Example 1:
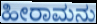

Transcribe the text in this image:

ಹೀರಾಮನು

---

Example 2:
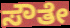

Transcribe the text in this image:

ಸೌತೇ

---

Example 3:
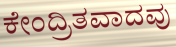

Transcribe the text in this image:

ಕೇಂದ್ರಿತವಾದವು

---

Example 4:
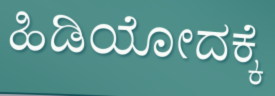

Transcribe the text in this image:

ಹಿಡಿಯೋದಕ್ಕೆ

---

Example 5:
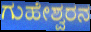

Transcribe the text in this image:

ಗುಹೇಶ್ವರನ